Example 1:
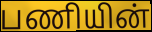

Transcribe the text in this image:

பணியின்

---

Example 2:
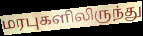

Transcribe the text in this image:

மரபுகளிலிருந்து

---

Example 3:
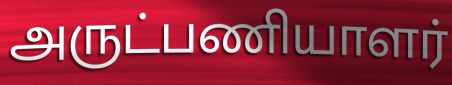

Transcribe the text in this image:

அருட்பணியாளர்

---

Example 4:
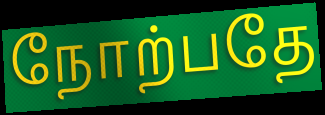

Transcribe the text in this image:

நோற்பதே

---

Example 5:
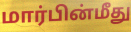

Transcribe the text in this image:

மார்பின்மீது